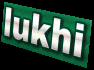
lukhi